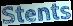
Stents